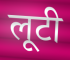
लूटी